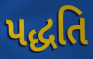
પદ્ધતિ